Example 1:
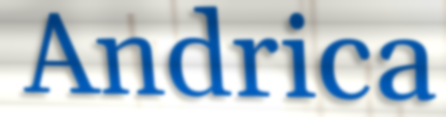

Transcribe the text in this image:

Andrica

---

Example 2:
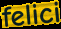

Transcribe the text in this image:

felici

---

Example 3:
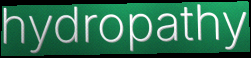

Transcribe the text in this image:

hydropathy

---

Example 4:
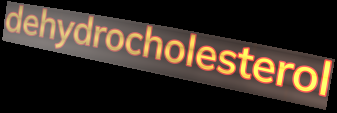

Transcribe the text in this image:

dehydrocholesterol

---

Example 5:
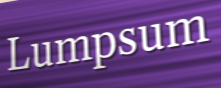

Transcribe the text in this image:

Lumpsum